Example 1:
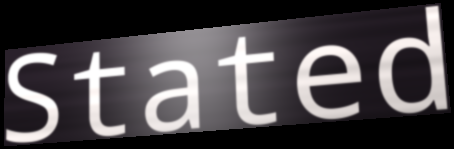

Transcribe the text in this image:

Stated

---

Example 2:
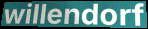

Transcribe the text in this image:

willendorf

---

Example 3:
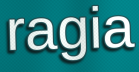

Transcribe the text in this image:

ragia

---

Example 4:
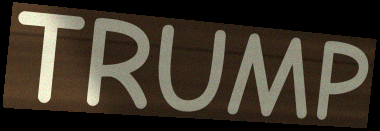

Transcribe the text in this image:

TRUMP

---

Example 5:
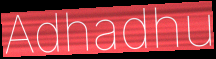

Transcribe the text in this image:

Adhadhu